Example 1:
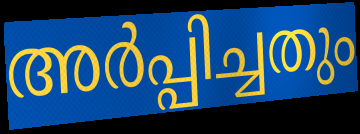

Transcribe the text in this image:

അർപ്പിച്ചതും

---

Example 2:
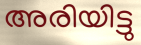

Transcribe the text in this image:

അരിയിട്ടു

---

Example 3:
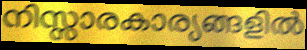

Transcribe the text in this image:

നിസ്സാരകാര്യങ്ങളിൽ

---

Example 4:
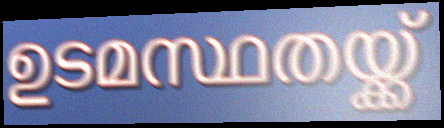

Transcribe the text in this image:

ഉടമസ്ഥതയ്ക്ക്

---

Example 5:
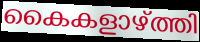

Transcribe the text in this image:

കൈകളാഴ്ത്തി